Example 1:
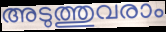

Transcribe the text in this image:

അടുത്തുവരാം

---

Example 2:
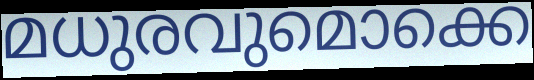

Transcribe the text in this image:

മധുരവുമൊക്കെ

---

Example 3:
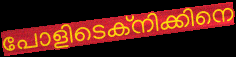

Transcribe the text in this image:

പോളിടെക്നിക്കിനെ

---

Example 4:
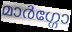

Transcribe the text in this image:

മാർഗ്ഗോ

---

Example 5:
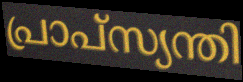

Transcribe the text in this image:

പ്രാപ്സ്യന്തി